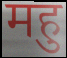
महु